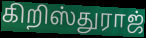
கிறிஸ்துராஜ்